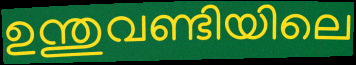
ഉന്തുവണ്ടിയിലെ